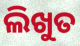
ଲିଖୁତ